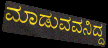
ಮಾಡುವವನಿದ್ದ